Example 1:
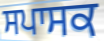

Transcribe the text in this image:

ਸਪਾਸਕ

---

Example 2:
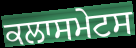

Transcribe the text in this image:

ਕਲਾਸਮੇਟਸ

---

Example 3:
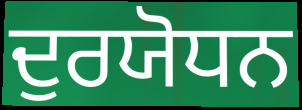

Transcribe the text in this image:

ਦੁਰਯੋਧਨ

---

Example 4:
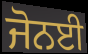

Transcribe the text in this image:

ਜੋਨਈ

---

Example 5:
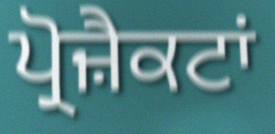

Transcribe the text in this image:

ਪ੍ਰੋਜ਼ੈਕਟਾਂ